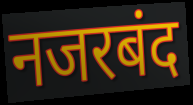
नजरबंद